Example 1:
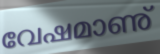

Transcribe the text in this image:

വേഷമാണു്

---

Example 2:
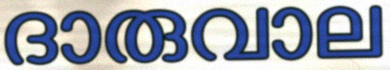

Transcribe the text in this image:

ദാരുവാല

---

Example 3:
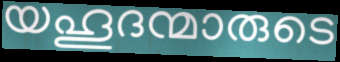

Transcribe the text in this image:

യഹൂദന്മാരുടെ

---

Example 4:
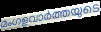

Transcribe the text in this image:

മംഗളവാർത്തയുടെ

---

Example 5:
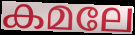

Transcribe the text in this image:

കമലേ